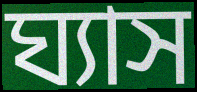
ঘ্যাস